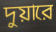
দুয়ারে